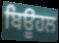
ਬਿਊਹਲ